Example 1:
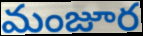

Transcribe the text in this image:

మంజూర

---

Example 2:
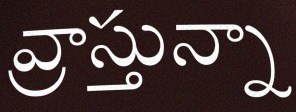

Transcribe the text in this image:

వ్రాస్తున్నా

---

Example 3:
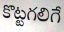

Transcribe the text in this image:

కొట్టగలిగే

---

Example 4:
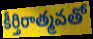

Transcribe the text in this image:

కీర్తిరాత్మవతో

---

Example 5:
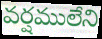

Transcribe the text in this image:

వర్షములేని